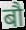
बौ